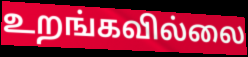
உறங்கவில்லை